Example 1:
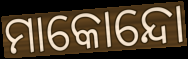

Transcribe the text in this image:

ମାକୋନ୍ଦୋ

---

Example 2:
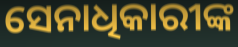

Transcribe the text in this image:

ସେନାଧିକାରୀଙ୍କ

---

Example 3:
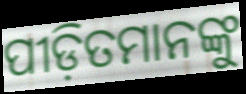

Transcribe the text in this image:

ପୀଡ଼ିତମାନଙ୍କୁ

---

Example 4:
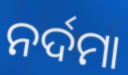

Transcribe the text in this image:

ନର୍ଦମା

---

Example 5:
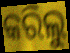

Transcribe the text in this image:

କରିଲୁ